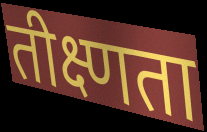
तीक्ष्णता